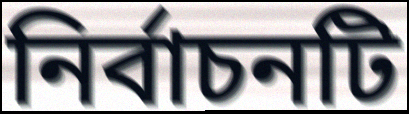
নির্বাচনটি